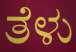
ತೆಳು